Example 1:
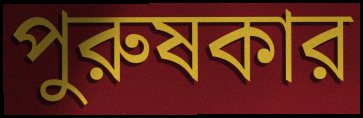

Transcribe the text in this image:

পুরুষকার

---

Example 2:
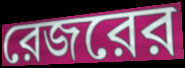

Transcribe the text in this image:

রেজরের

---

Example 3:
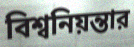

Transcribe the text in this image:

বিশ্বনিয়ন্তার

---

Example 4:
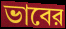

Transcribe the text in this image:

ভাবের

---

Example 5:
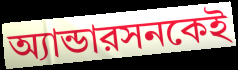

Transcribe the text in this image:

অ্যান্ডারসনকেই